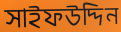
সাইফউদ্দিন